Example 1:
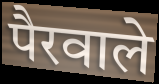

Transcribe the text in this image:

पैरवाले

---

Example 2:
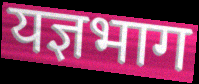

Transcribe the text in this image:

यज्ञभाग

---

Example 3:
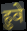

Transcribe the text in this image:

हुवे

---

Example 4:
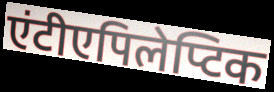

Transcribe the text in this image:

एंटीएपिलेप्टिक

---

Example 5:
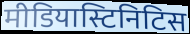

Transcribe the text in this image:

मीडियास्टिनिटिस